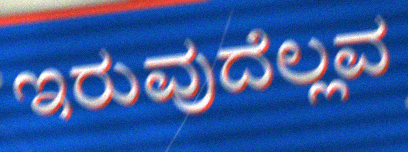
ಇರುವುದೆಲ್ಲವ